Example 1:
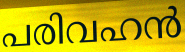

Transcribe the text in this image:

പരിവഹൻ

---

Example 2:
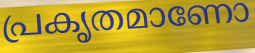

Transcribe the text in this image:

പ്രകൃതമാണോ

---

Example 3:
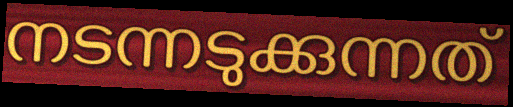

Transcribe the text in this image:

നടന്നടുക്കുന്നത്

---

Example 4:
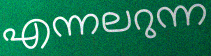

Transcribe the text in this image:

എന്നലറുന്ന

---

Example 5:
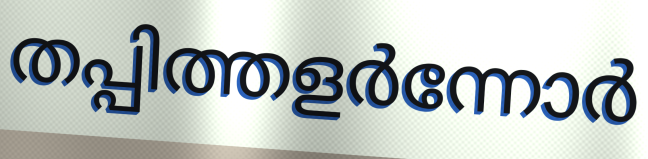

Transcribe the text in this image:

തപ്പിത്തളർന്നോർ